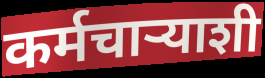
कर्मचाऱ्याशी